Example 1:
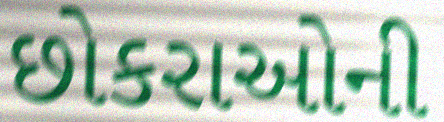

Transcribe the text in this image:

છોકરાઓની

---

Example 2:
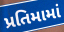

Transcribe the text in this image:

પ્રતિમામાં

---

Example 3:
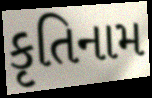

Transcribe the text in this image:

કૃતિનામ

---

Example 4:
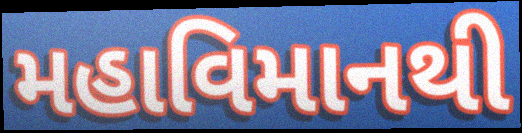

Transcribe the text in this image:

મહાવિમાનથી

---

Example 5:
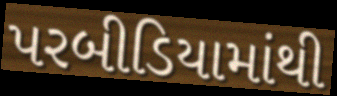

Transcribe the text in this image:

પરબીડિયામાંથી